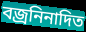
বজ্রনিনাদিত